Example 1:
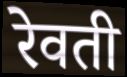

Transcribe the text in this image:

रेवती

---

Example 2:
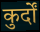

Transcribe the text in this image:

कुर्दों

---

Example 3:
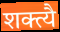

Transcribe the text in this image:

शक्त्यै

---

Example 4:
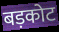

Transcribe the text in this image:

बड़कोट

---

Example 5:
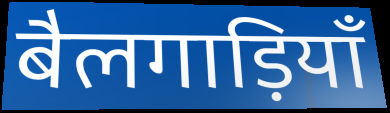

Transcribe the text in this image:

बैलगाड़ियाँ